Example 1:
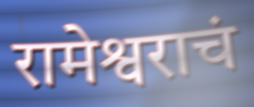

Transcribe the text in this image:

रामेश्वराचं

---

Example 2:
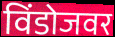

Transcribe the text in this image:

विंडोजवर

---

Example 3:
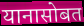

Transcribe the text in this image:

यानासोबत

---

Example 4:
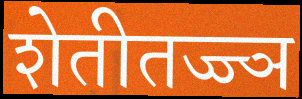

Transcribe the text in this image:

शेतीतज्ज्ञ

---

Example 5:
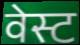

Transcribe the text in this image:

वेस्ट